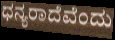
ಧನ್ಯರಾದೆವೆಂದು